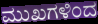
ಮುಖಗಳಿಂದ